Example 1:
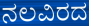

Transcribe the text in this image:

ನಲವಿರದ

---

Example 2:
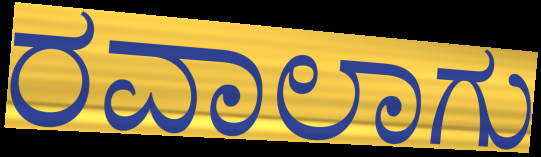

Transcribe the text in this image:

ರವಾಲಾಗು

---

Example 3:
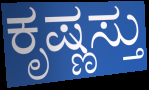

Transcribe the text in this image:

ಕೃಷ್ಣಸ್ತು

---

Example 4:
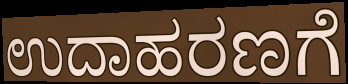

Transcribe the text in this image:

ಉದಾಹರಣಗೆ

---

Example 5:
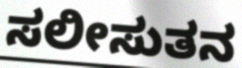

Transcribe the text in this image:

ಸಲೀಸುತನ